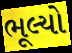
ભૂલ્‍યો